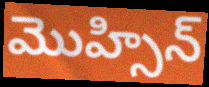
మొహ్సిన్